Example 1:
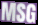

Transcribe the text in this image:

MSG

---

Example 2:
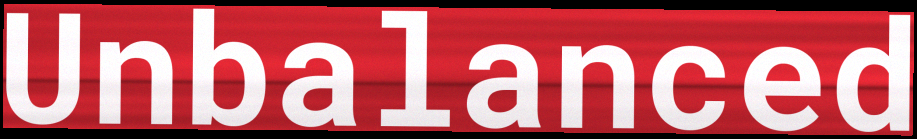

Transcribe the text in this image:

Unbalanced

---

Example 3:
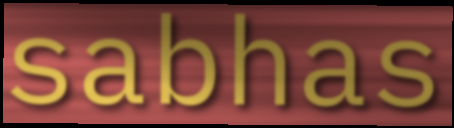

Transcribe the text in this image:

sabhas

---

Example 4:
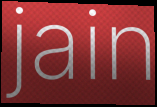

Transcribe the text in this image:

jain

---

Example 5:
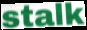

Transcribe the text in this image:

stalk